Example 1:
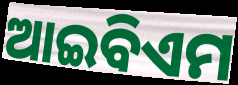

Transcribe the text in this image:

ଆଇବିଏମ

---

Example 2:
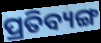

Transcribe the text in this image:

ପ୍ରତିବ୍ୟଙ୍ଗ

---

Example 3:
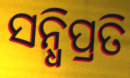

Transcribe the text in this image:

ସନ୍ଧିପ୍ରତି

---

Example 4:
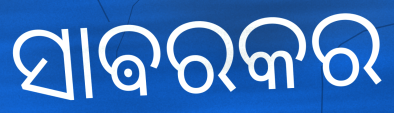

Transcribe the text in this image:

ସାଵରକର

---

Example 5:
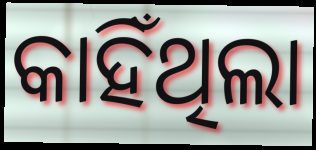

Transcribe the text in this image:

କାହିଁଥିଲା